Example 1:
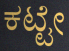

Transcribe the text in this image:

ಕಟ್ಟೇ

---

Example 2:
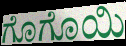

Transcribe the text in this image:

ಗೊಗೊಯಿ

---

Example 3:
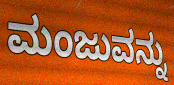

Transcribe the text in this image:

ಮಂಜುವನ್ನು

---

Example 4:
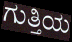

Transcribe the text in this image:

ಗುತ್ತಿಯ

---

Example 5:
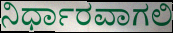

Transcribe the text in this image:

ನಿರ್ಧಾರವಾಗಲಿ